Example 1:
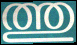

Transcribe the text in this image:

ത്തു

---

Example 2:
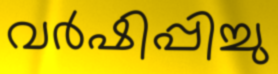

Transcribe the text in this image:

വർഷിപ്പിച്ചു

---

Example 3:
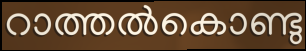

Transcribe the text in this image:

റാത്തൽകൊണ്ടു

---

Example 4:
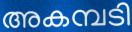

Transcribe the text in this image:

അകമ്പടി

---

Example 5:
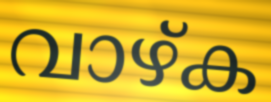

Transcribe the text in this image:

വാഴ്ക